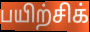
பயிற்சிக்